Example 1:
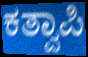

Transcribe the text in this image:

ಕತ್ವಾಪಿ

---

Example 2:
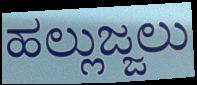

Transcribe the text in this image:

ಹಲ್ಲುಜ್ಜಲು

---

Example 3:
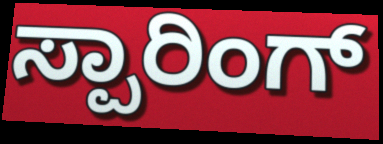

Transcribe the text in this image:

ಸ್ಪಾರಿಂಗ್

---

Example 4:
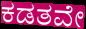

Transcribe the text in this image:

ಕಡತವೇ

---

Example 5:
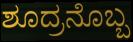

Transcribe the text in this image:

ಶೂದ್ರನೊಬ್ಬ